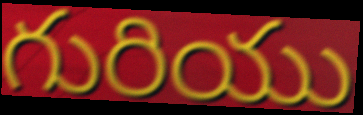
గురియు